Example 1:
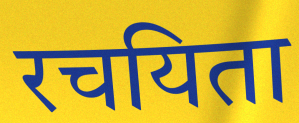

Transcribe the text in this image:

रचयिता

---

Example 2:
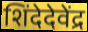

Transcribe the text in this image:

शिंदेदेवेंद्र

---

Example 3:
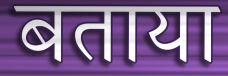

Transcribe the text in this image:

बताया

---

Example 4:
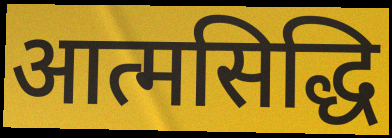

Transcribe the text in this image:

आत्मसिद्धि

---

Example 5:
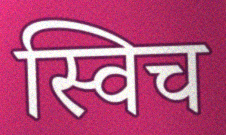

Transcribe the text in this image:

स्विच